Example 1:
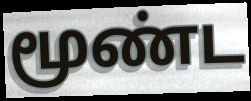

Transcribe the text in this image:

மூண்ட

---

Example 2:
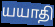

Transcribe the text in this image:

யயாதி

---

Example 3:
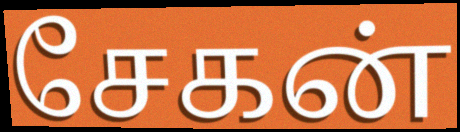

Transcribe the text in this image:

சேகன்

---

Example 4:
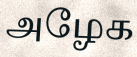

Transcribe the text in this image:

அழேக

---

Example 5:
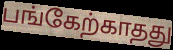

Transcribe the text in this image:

பங்கேற்காதது